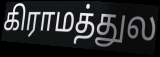
கிராமத்துல